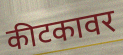
कीटकावर